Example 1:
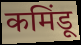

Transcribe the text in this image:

कमिंडू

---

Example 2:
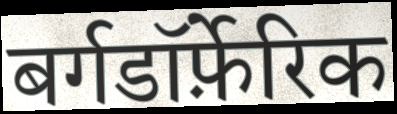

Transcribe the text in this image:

बर्गडॉर्फ़ेरिक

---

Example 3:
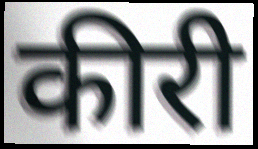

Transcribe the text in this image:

कीरी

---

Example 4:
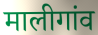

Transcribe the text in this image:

मालीगांव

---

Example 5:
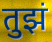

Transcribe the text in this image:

तुझं